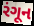
રંગૂન